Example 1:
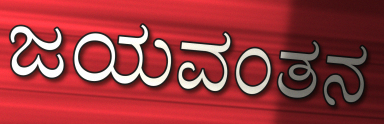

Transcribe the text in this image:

ಜಯವಂತನ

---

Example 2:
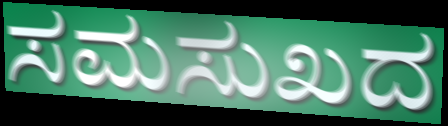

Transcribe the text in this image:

ಸಮಸುಖದ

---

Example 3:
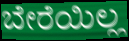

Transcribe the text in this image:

ಬೇರೆಯಿಲ್ಲ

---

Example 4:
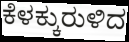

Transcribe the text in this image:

ಕೆಳಕ್ಕುರುಳಿದ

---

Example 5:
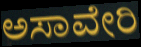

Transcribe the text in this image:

ಅಸಾವೇರಿ